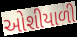
ઓશીયાળી